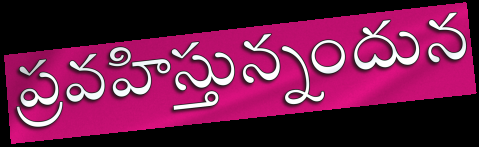
ప్రవహిస్తున్నందున